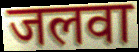
जलवा